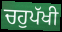
ਚਹੁਪੱਖੀ